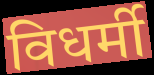
विधर्मी